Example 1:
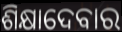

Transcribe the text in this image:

ଶିକ୍ଷାଦେବାର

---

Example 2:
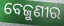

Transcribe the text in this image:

ବେଜୁଣୀର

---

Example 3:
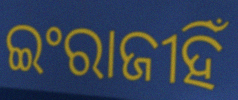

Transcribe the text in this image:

ଇଂରାଜୀହିଁ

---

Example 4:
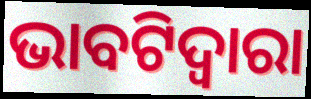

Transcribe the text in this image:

ଭାବଟିଦ୍ୱାରା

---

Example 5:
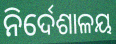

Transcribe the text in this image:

ନିର୍ଦେଶାଳୟ